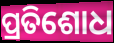
ପ୍ରତିଶୋଧ